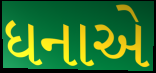
ધનાએ